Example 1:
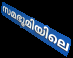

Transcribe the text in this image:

സമഭൂമിയിലെ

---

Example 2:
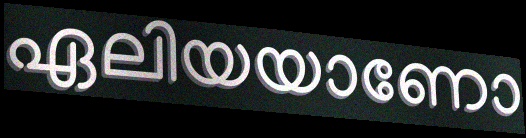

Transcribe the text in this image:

ഏലിയയാണോ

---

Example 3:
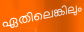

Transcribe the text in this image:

ഏതിലെങ്കിലും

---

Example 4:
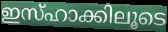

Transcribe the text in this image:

ഇസ്ഹാക്കിലൂടെ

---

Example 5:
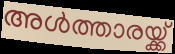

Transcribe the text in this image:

അൾത്താരയ്ക്ക്